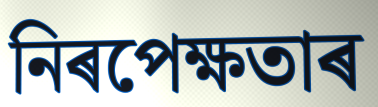
নিৰপেক্ষতাৰ